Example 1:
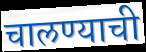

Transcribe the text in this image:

चालण्याची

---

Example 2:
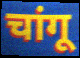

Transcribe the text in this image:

चांगू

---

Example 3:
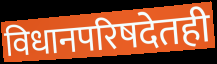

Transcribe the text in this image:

विधानपरिषदेतही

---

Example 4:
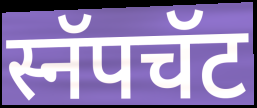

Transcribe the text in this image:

स्नॅपचॅट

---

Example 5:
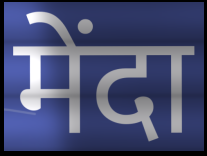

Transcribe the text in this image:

मेंदा